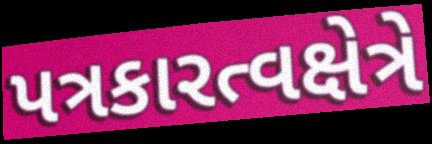
પત્રકારત્વક્ષેત્રે